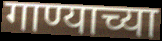
गाण्याच्या